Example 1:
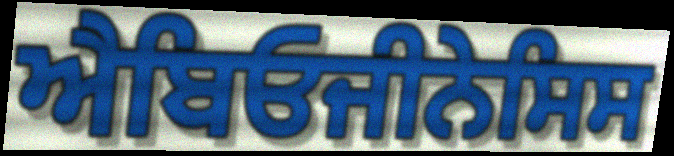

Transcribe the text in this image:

ਐਬਿਓਜੀਨੇਸਿਸ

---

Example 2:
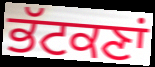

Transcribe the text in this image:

ਭੱਟਕਣਾਂ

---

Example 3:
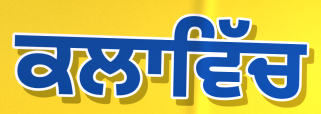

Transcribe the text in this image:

ਕਲਾਵਿੱਚ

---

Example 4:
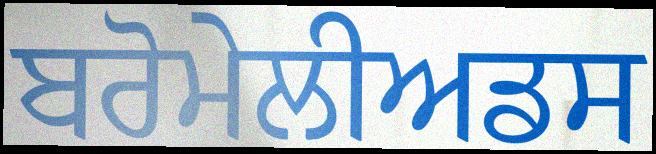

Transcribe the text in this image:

ਬਰੋਮੇਲੀਅਡਸ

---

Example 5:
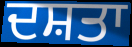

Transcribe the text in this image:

ਦਸ਼ਤਾ